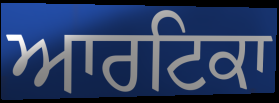
ਆਰਟਿਕਾ